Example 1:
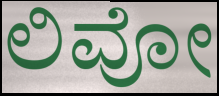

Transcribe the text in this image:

ಲಿವೋ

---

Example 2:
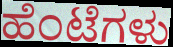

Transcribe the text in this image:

ಹೆಂಟೆಗಳು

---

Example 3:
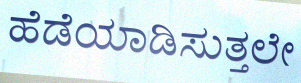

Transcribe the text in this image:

ಹೆಡೆಯಾಡಿಸುತ್ತಲೇ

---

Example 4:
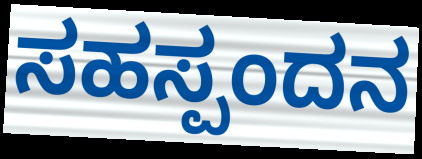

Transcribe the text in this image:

ಸಹಸ್ಪಂದನ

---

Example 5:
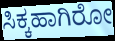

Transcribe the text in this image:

ಸಿಕ್ಕಹಾಗಿರೋ